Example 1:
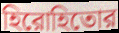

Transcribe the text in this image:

হিরোহিতোর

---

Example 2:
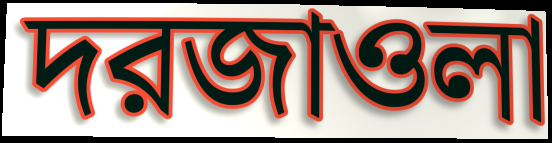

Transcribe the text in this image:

দরজাওলা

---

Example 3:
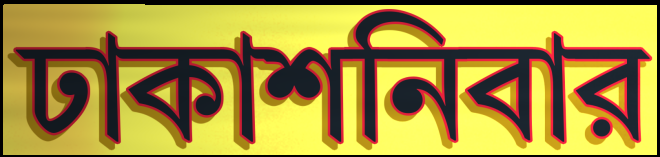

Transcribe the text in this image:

ঢাকাশনিবার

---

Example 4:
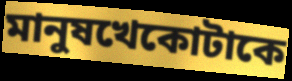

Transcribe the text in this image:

মানুষখেকোটাকে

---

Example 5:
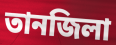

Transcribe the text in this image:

তানজিলা